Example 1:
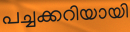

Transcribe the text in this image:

പച്ചക്കറിയായി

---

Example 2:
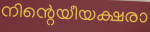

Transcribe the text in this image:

നിന്റെയീയക്ഷരാ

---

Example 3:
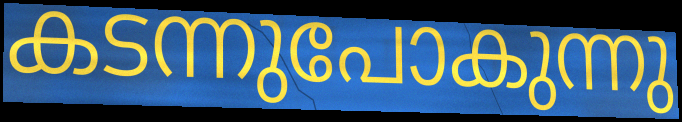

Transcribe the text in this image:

കടന്നുപോകുന്നു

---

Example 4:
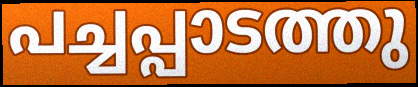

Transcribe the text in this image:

പച്ചപ്പാടത്തു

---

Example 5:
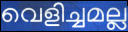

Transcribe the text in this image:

വെളിച്ചമല്ല